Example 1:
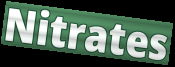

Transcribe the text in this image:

Nitrates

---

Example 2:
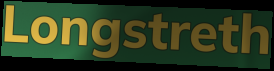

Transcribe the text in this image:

Longstreth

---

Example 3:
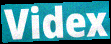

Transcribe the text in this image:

Videx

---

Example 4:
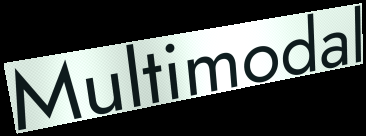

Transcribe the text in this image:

Multimodal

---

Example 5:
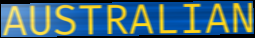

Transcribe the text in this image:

AUSTRALIAN